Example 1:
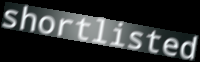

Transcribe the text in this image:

shortlisted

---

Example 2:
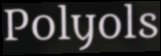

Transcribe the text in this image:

Polyols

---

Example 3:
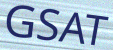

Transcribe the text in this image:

GSAT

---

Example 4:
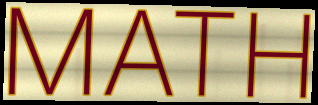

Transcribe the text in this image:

MATH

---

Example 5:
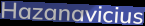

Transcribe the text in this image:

Hazanavicius